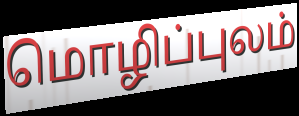
மொழிப்புலம்